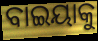
ବାଇୟାକୁ